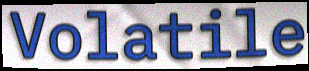
Volatile